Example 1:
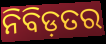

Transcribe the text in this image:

ନିବିଡ଼ତର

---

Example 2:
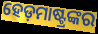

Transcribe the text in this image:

ହେଡ଼ମାଷ୍ଟ୍ରଙ୍କର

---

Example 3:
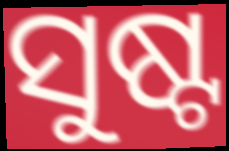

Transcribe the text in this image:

ସୁଷ୍ଟ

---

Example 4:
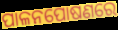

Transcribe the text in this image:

ପାଳନପୋଷଣରେ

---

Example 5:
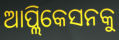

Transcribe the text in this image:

ଆପ୍ଲିକେସନକୁ